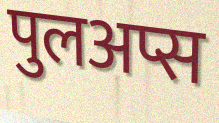
पुलअप्स